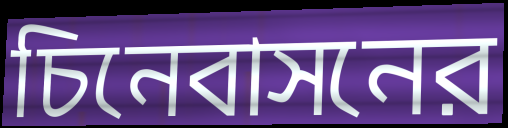
চিনেবাসনের